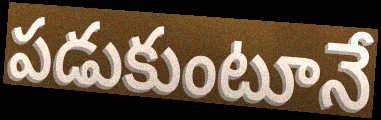
పడుకుంటూనే